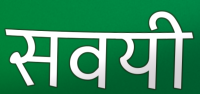
सवयी